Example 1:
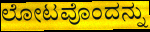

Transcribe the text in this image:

ಲೋಟವೊಂದನ್ನು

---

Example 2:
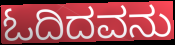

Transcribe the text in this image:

ಓದಿದವನು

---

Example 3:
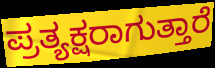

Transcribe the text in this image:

ಪ್ರತ್ಯಕ್ಷರಾಗುತ್ತಾರೆ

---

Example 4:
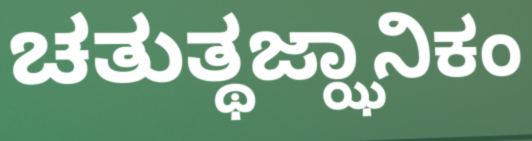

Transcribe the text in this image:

ಚತುತ್ಥಜ್ಝಾನಿಕಂ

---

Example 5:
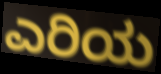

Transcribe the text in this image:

ಎರಿಯ